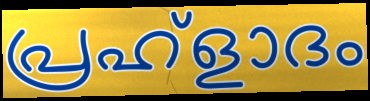
പ്രഹ്ളാദം